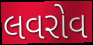
લવરોવ